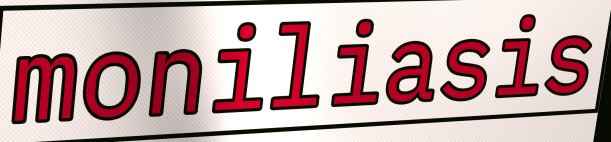
moniliasis